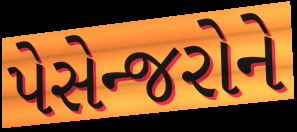
પેસેન્જરોને